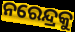
ନରେନ୍ଦ୍ରକୁ